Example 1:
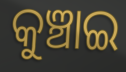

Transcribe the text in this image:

କୁଞ୍ଚାଇ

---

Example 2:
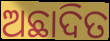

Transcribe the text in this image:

ଅଛାଦିତ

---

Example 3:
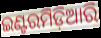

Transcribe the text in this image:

ଇଣ୍ଟରମିଡ଼ିଆରି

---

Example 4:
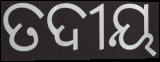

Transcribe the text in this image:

ତଦୀୟ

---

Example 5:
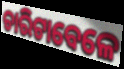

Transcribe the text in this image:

ଚାରିଟାବେଳେ